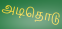
அடிதொடு